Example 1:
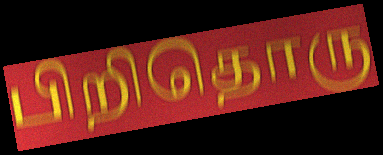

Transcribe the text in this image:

பிறிதொரு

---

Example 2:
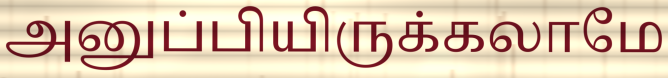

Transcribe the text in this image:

அனுப்பியிருக்கலாமே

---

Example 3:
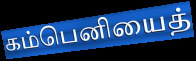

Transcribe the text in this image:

கம்பெனியைத்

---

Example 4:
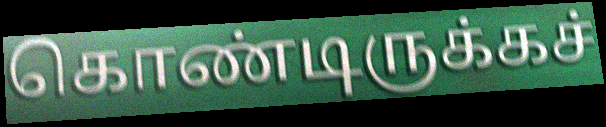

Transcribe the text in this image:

கொண்டிருக்கச்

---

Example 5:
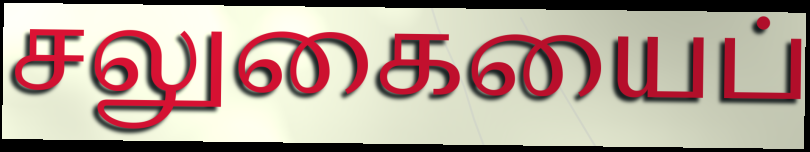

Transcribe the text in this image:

சலுகையைப்